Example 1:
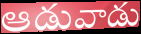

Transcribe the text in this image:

ఆడువాడు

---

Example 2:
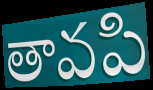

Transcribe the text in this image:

తావపి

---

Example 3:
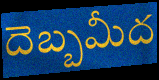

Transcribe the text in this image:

దెబ్బమీద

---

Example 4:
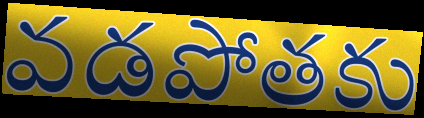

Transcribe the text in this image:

వడపోతకు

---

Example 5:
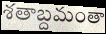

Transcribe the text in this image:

శతాబ్దమంతా